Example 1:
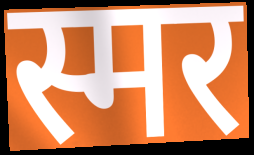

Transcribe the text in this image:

स्मर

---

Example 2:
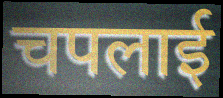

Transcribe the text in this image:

चपलाई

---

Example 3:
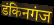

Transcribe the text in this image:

डंकिनगंज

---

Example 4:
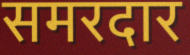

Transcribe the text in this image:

समरदार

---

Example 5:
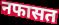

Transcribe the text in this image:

नफासत